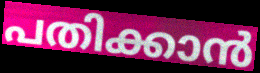
പതിക്കാൻ